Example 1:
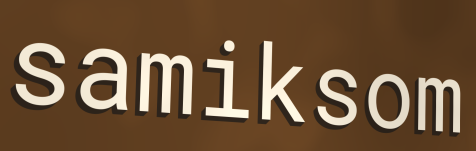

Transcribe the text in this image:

samiksom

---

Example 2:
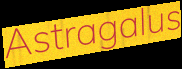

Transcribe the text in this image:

Astragalus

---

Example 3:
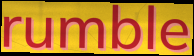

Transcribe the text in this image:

rumble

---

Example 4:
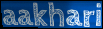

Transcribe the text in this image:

aakhari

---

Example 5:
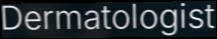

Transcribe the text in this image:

Dermatologist